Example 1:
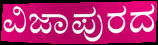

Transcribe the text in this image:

ವಿಜಾಪುರದ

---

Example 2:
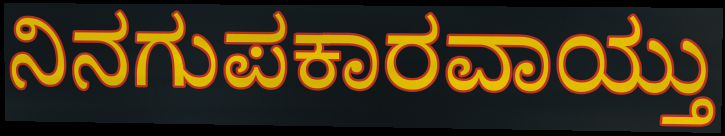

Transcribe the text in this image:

ನಿನಗುಪಕಾರವಾಯ್ತು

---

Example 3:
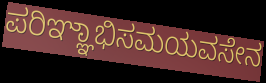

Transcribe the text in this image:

ಪರಿಞ್ಞಾಭಿಸಮಯವಸೇನ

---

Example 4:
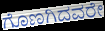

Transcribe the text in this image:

ಗೊಣಗಿದವರೇ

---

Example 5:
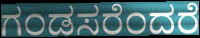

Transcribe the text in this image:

ಗಂಡಸರೆಂದರೆ